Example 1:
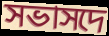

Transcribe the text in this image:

সভাসদে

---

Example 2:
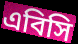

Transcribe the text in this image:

এবিসি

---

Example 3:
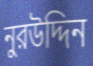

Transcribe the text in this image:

নুরউদ্দিন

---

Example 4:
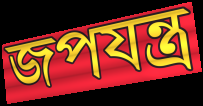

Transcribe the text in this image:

জপযন্ত্র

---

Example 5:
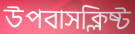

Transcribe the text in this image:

উপবাসক্লিষ্ট